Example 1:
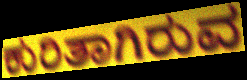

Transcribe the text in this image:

ಕುರಿತಾಗಿರುವ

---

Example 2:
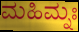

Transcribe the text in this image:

ಮಹಿಮ್ನಃ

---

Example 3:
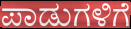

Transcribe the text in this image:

ಪಾಡುಗಳಿಗೆ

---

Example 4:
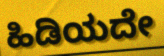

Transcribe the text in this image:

ಹಿಡಿಯದೇ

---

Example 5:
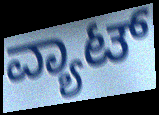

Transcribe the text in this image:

ವ್ಯಾಟ್